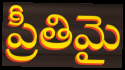
ప్రీతిమై